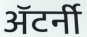
ॲटर्नी